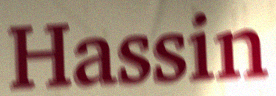
Hassin